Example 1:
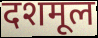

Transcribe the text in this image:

दशमूल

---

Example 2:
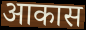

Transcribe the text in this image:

आकास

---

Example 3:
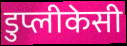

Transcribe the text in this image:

डुप्लीकेसी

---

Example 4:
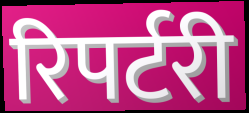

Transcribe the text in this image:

रिपर्टरी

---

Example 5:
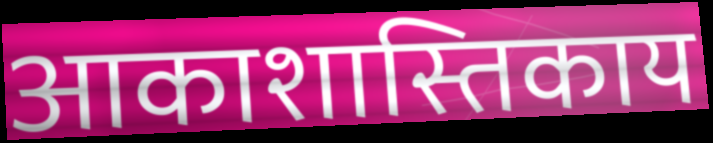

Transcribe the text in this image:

आकाशास्तिकाय